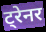
ट्रेनर